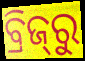
ବ୍ରିଜ୍‌ରୁ